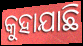
କୁହାଯାଛି